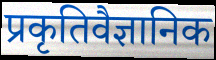
प्रकृतिवैज्ञानिक